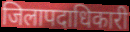
जिलापदाधिकारी